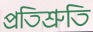
প্রতিশ্রুতি